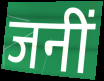
जनीं